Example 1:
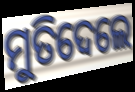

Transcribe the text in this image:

ମୁତିଦେଲେ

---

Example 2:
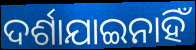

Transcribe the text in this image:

ଦର୍ଶାଯାଇନାହିଁ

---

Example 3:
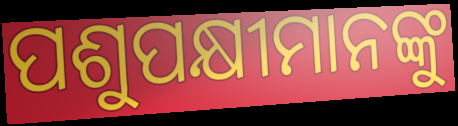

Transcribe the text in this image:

ପଶୁପକ୍ଷୀମାନଙ୍କୁ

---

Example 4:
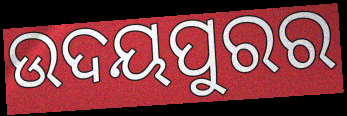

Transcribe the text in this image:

ଉଦୟପୁରର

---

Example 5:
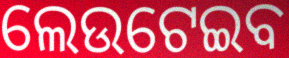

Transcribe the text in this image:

ଲେଉଟେଇବ